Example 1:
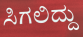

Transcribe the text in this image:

ಸಿಗಲಿದ್ದು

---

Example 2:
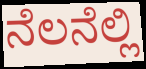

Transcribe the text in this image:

ನೆಲನೆಲ್ಲಿ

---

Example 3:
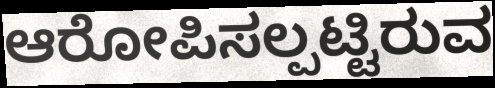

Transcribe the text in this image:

ಆರೋಪಿಸಲ್ಪಟ್ಟಿರುವ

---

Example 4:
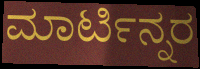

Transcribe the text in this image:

ಮಾರ್ಟಿನ್ನರ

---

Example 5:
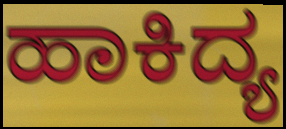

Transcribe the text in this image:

ಹಾಕಿದ್ಯ